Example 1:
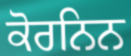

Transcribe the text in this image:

ਕੋਰਨਿਨ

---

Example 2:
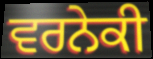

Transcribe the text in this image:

ਵਰਨੇਕੀ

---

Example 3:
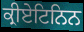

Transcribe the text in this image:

ਕ੍ਰੀਏਟਿਨਿਨ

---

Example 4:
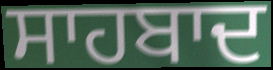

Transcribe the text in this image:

ਸਾਹਬਾਦ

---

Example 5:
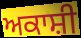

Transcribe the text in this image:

ਅਕਾਸ਼ੀ